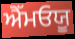
ਐੱਮਓਯੂ